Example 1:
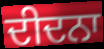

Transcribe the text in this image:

ਦੀਦਨਾ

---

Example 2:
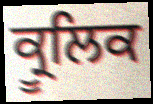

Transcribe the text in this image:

ਕ੍ਰੂਲਿਕ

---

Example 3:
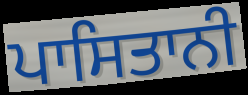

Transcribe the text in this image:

ਪਾਸਿਤਾਨੀ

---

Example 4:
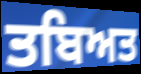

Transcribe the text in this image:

ਤਬਿਅਤ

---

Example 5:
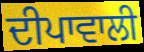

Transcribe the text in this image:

ਦੀਪਾਵਾਲੀ